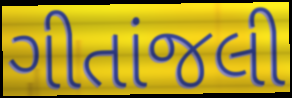
ગીતાંજલી